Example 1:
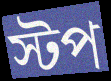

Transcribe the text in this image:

স্টপ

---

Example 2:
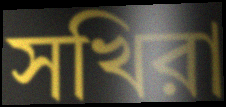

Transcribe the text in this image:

সখিরা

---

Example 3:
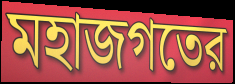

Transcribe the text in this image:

মহাজগতের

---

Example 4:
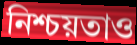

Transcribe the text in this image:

নিশ্চয়তাও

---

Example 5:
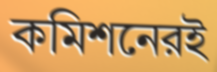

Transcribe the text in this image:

কমিশনেরই